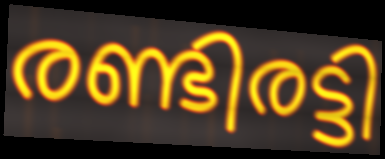
രണ്ടിരട്ടി